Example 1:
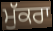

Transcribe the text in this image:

ਮੁੱਕਰਾ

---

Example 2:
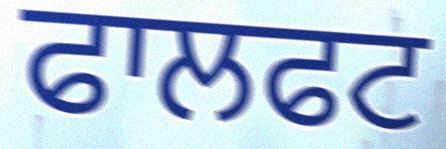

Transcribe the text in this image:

ਫਾਲਫਟ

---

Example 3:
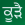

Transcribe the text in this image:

ਕੂੜੈ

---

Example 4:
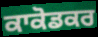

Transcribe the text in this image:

ਕਾਕੋਡਕਰ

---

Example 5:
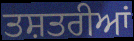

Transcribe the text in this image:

ਤਸ਼ਤਰੀਆਂ